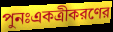
পুনঃএকত্রীকরণের